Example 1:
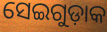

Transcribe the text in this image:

ସେଇଗୁଡ଼ାକ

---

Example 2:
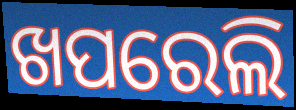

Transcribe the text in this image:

ଖପରେଲି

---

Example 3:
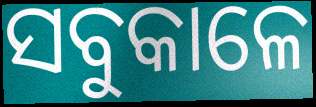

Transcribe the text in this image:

ସବୁକାଳେ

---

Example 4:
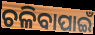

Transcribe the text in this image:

ଚଳିବାପାଇଁ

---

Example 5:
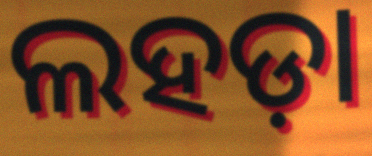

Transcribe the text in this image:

ଲହଡ଼ା